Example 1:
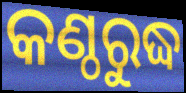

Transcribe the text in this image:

କଣ୍ଠରୁଦ୍ଧ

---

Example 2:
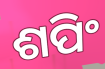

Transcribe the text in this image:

ଶପିଂ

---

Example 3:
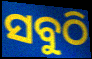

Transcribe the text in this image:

ସବୁଠି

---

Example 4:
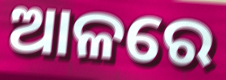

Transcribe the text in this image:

ଆଳରେ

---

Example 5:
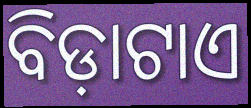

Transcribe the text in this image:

ବିଡ଼ାଟାଏ